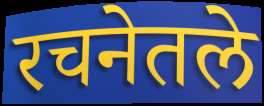
रचनेतले